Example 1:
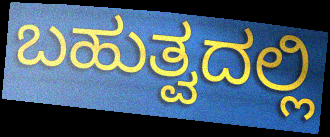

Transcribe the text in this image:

ಬಹುತ್ವದಲ್ಲಿ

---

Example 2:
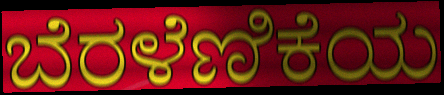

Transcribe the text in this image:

ಬೆರಳೆಣಿಕೆಯ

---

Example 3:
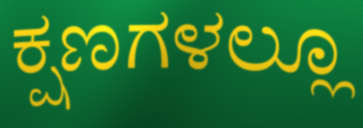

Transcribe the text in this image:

ಕ್ಷಣಗಳಲ್ಲೂ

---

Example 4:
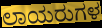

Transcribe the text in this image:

ಲಾಯರುಗಳ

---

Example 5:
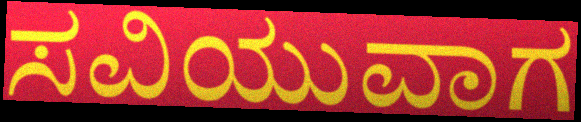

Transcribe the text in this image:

ಸವಿಯುವಾಗ